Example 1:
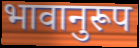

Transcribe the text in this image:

भावानुरूप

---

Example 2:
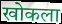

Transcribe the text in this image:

खोकला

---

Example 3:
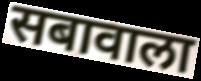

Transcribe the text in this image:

सबावाला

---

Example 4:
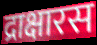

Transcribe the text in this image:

द्राक्षारस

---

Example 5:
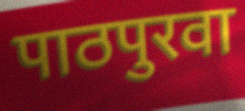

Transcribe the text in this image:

पाठपुरवा